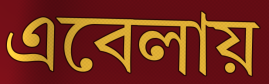
এবেলায়